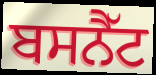
ਬਸਨੈੱਟ